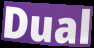
Dual